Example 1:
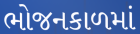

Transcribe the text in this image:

ભોજનકાળમાં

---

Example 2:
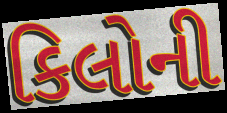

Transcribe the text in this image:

કિલોની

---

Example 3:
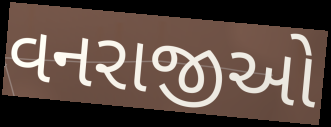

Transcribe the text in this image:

વનરાજીઓ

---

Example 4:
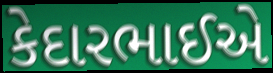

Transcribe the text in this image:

કેદારભાઈએ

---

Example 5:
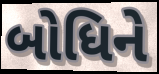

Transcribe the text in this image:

બોધિને